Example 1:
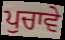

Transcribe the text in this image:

ਪੁਚਾਵੇ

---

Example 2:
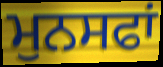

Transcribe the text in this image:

ਮੁਨਸਫਾਂ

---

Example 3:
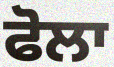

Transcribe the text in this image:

ਫੋਲਾ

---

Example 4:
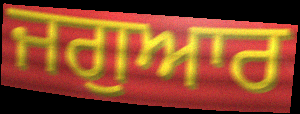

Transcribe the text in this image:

ਜਗੁਆਰ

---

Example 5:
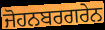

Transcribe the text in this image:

ਜੋਹਨਬਰਗਰੇਨ